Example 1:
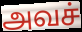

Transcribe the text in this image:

அவச்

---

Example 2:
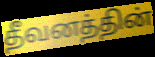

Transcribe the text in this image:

தீவனத்தின்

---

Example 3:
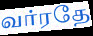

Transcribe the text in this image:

வர்ரதே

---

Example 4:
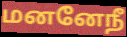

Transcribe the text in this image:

மனனேநீ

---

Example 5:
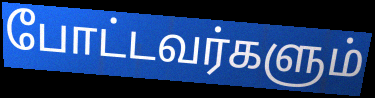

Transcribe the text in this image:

போட்டவர்களும்